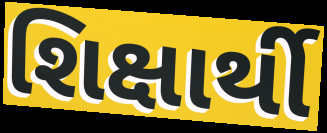
શિક્ષાર્થી